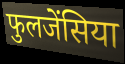
फुलजेंसिया